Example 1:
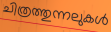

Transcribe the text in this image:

ചിത്രത്തുന്നലുകൾ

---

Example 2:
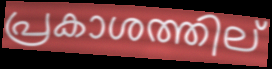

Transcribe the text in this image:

പ്രകാശത്തില്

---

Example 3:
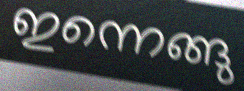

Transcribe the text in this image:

ഇന്നെങ്ങു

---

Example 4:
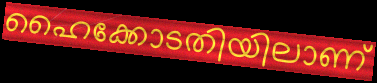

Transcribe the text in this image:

ഹൈക്കോടതിയിലാണ്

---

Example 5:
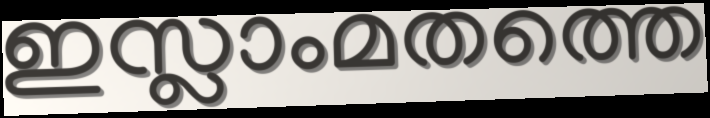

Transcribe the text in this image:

ഇസ്ലാംമതത്തെ